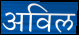
अविल